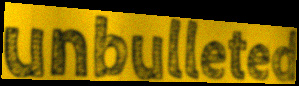
unbulleted